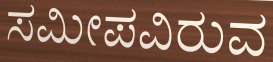
ಸಮೀಪವಿರುವ